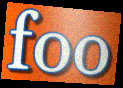
foo